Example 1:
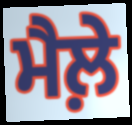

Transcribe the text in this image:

ਮੈਲ਼ੇ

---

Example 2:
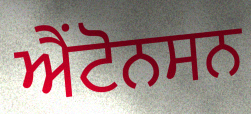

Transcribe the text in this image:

ਐਂਟੋਨਸਨ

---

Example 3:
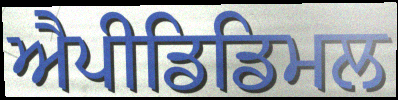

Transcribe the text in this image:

ਐਪੀਡਿਡਿਮਲ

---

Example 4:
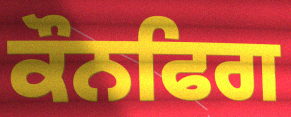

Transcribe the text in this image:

ਕੌਨਫਿਗ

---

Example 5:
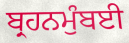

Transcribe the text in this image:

ਬ੍ਰਹਨਮੁੰਬਈ